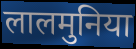
लालमुनिया